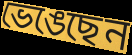
ভেঙেছেন